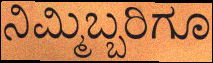
ನಿಮ್ಮಿಬ್ಬರಿಗೂ